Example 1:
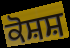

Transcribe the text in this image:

ਕੋਸ਼ਸ਼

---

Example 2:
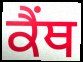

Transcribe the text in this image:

ਕੈਂਥ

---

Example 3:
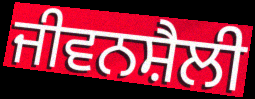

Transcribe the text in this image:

ਜੀਵਨਸ਼ੈਲੀ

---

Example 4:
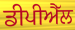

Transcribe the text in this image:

ਡੀਪੀਐੱਲ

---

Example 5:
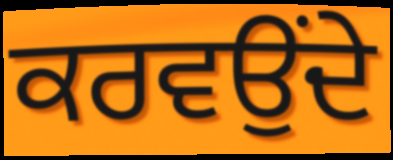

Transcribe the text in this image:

ਕਰਵਉਂਦੇ